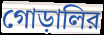
গোড়ালির